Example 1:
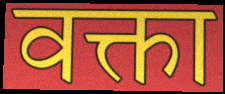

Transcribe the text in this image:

वक्ता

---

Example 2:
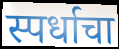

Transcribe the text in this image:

स्पर्धाचा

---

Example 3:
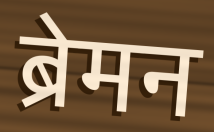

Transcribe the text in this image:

ब्रेमन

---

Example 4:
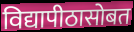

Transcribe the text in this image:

विद्यापीठासोबत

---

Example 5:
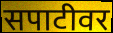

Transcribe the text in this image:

सपाटीवर